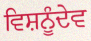
ਵਿਸ਼ਨੂੰਦੇਵ